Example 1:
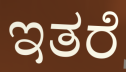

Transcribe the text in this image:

ಇತರೆ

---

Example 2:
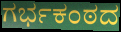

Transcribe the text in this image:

ಗರ್ಭಕಂಠದ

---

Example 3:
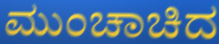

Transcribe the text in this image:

ಮುಂಚಾಚಿದ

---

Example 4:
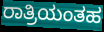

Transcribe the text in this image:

ರಾತ್ರಿಯಂತಹ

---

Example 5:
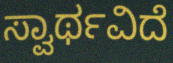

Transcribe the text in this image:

ಸ್ವಾರ್ಥವಿದೆ